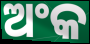
ଅଂକ